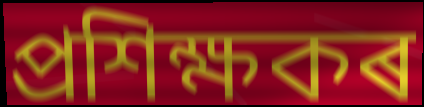
প্ৰশিক্ষকৰ